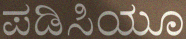
ಪಡಿಸಿಯೂ